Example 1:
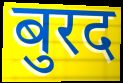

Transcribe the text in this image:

बुरद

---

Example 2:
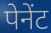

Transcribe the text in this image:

पेनेंट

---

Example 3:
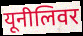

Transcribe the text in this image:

यूनीलिवर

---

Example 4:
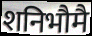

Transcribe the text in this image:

शनिभौमै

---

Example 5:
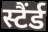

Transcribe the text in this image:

स्टैंर्ड